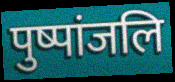
पुष्‍पांजलि